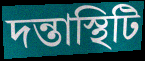
দন্তাস্থিটি